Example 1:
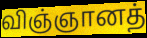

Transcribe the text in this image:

விஞ்ஞானத்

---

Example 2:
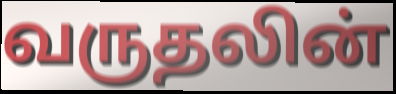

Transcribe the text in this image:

வருதலின்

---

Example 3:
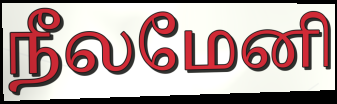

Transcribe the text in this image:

நீலமேனி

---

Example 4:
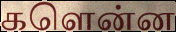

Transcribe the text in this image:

களென்ன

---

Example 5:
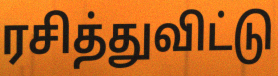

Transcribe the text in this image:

ரசித்துவிட்டு